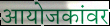
आयोजकांवर